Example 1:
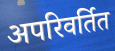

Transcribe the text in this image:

अपरिवर्तित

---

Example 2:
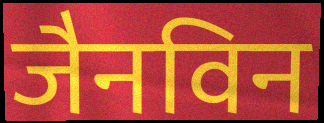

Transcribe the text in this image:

जैनविन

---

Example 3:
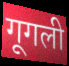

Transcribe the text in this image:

गूगली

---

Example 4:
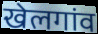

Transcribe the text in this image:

खेलगांव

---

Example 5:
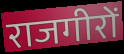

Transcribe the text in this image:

राजगीरों